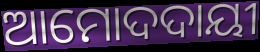
ଆମୋଦଦାୟୀ